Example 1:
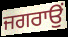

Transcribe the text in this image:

ਜਗਰਾਉਂ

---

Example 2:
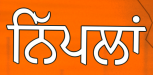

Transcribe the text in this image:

ਨਿੱਪਲਾਂ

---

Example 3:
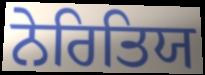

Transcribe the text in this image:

ਨੇਰਿਤਿਯ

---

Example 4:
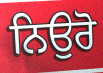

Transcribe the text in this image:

ਨਿਉਰੋ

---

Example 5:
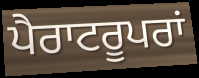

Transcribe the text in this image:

ਪੈਰਾਟਰੂਪਰਾਂ